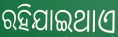
ରହିଯାଇଥାଏ